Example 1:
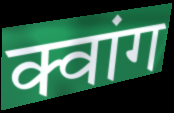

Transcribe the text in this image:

क्वांग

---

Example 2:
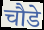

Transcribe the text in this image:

चौडे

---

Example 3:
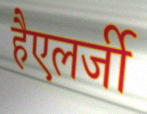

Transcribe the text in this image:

हैएलर्जी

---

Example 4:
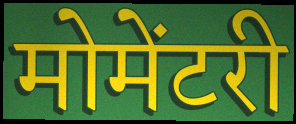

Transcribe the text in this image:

मोमेंटरी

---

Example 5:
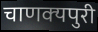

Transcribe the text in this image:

चाणक्यपुरी